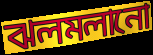
ঝলমলানো